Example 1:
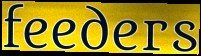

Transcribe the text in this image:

feeders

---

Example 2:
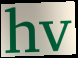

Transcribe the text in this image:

hv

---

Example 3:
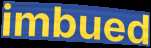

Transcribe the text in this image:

imbued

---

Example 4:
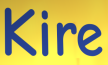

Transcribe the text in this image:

Kire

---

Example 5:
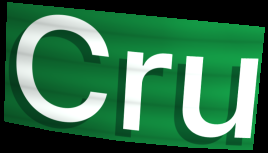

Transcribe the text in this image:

Cru